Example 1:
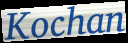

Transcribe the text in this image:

Kochan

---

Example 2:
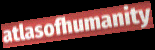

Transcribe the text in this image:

atlasofhumanity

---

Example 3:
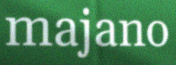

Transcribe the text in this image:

majano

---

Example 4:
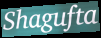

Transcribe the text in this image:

Shagufta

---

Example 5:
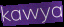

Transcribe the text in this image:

kawya